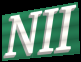
NII